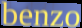
benzo